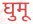
घुमू